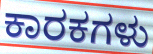
ಕಾರಕಗಳು